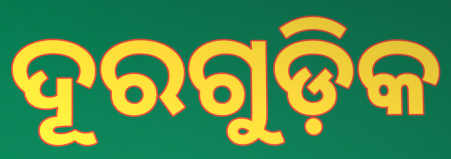
ଦୂରଗୁଡ଼ିକ